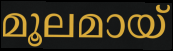
മൂലമായ്